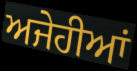
ਅਜੇਹੀਆਂ